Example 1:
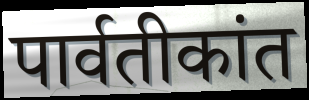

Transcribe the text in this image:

पार्वतीकांत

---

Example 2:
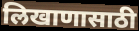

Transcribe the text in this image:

लिखाणासाठी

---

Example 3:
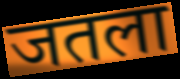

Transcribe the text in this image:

जतला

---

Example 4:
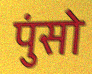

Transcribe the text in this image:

पुंसो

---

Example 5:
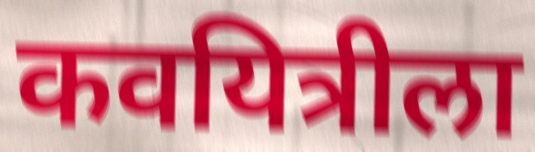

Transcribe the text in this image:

कवयित्रीला